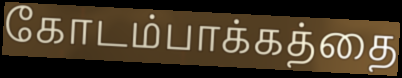
கோடம்பாக்கத்தை